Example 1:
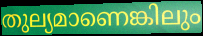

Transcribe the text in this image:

തുല്യമാണെങ്കിലും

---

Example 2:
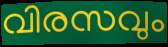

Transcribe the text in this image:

വിരസവും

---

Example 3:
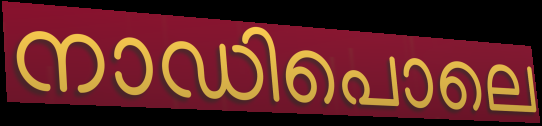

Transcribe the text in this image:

നാഡിപൊലെ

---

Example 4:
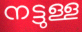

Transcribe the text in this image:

നട്ടുള്ള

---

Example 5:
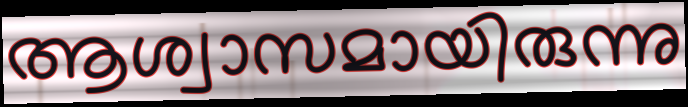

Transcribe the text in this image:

ആശ്വാസമായിരുന്നു